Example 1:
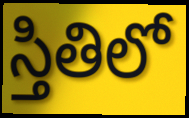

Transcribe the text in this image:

స్తితిలో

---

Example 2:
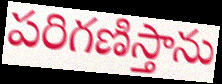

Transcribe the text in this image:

పరిగణిస్తాను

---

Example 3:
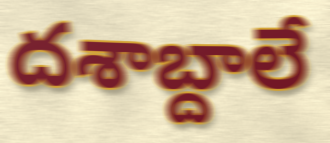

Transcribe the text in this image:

దశాబ్దాలే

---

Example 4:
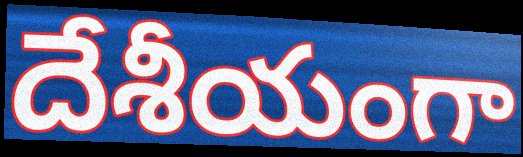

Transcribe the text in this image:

దేశీయంగా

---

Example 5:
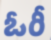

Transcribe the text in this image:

ఓరీ